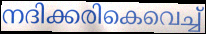
നദിക്കരികെവെച്ച്